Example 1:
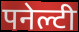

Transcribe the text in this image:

पनेल्टी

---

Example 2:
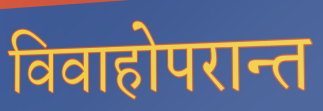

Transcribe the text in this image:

विवाहोपरान्त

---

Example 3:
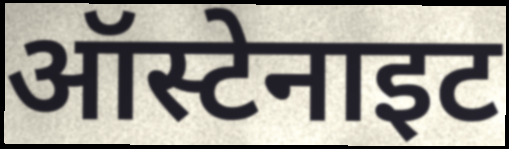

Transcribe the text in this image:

ऑस्टेनाइट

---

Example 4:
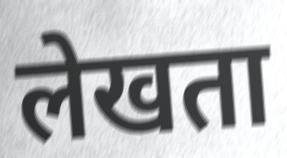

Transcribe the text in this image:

लेखता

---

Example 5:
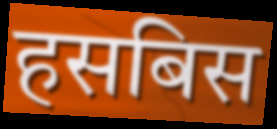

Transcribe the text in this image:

हसबिस